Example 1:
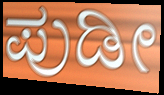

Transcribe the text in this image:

ಪುಡೀ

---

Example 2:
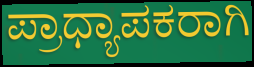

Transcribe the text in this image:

ಪ್ರಾಧ್ಯಾಪಕರಾಗಿ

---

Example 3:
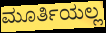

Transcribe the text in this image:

ಮೂರ್ತಿಯಲ್ಲ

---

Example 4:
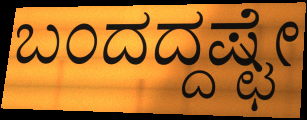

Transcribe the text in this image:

ಬಂದದ್ದಷ್ಟೇ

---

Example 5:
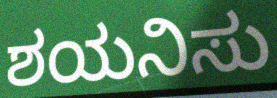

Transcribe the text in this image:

ಶಯನಿಸು